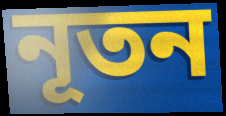
নূতন